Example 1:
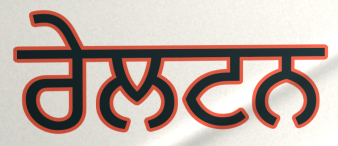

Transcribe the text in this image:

ਰੇਲਟਨ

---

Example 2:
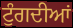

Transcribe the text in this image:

ਟੁੰਗਦੀਆਂ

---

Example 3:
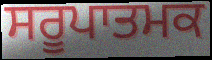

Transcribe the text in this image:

ਸਰੂਪਾਤਮਕ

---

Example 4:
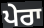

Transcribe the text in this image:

ਪੇਰਾ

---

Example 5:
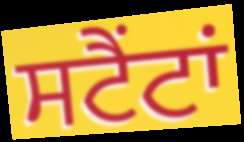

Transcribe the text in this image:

ਸਟੈਂਟਾਂ